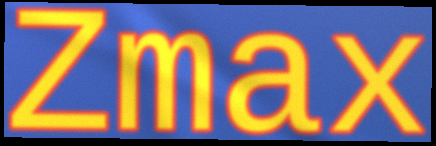
Zmax